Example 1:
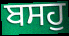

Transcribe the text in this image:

ਬਸਹੁ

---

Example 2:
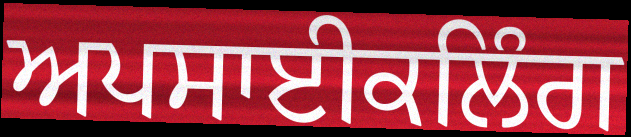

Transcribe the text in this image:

ਅਪਸਾਈਕਲਿੰਗ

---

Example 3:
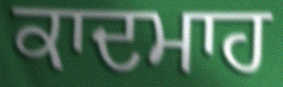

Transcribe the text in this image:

ਕਾਦਮਾਹ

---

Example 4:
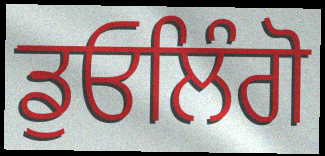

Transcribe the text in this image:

ਡੁਓਲਿੰਗੋ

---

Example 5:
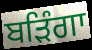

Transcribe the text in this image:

ਬੜਿੰਗਾ